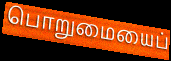
பொறுமையைப்